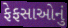
ફેફસાઓનું